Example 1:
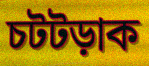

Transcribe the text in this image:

চটটড়াক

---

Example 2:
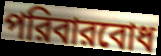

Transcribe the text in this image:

পরিবারবোধ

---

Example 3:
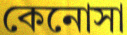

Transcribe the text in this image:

কেনোসা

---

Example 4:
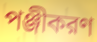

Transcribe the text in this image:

পঞ্জীকরণ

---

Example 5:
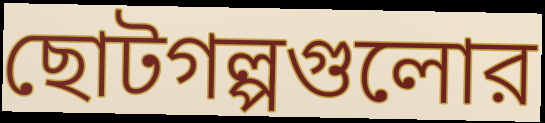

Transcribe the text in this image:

ছোটগল্পগুলোর